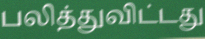
பலித்துவிட்டது